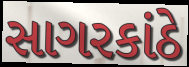
સાગરકાંઠે